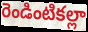
రెండింటికల్లా